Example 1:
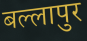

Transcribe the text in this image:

बल्लापुर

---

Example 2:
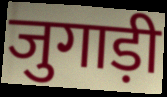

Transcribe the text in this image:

जुगाड़ी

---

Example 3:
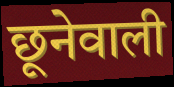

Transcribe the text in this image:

छूनेवाली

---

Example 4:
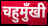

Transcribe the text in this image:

चहुमुँखी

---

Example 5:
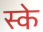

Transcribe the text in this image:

स्के